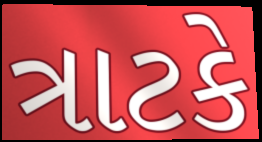
ત્રાટકે